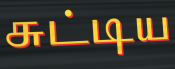
சுட்டிய